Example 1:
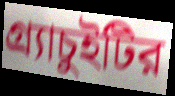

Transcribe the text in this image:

গ্র্যাচুইটির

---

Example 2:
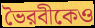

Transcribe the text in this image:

ভৈরবীকেও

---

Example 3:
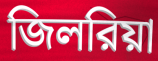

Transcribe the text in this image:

জিলরিয়া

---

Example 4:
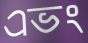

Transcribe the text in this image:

এভং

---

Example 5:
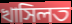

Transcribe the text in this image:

খাসিলত